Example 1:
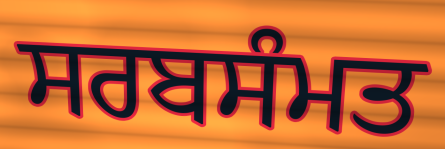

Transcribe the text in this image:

ਸਰਬਸੰਮਤ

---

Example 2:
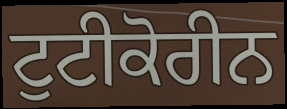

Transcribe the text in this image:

ਟੁਟੀਕੋਰੀਨ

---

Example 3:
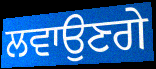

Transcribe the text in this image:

ਲਵਾਉਣਗੇ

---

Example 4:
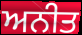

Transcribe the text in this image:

ਅਨੀਤ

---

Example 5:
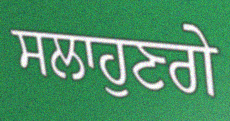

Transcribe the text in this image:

ਸਲਾਹੁਣਗੇ